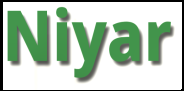
Niyar